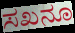
ಸಖನೂ